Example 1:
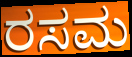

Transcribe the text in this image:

ರಸಮ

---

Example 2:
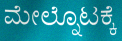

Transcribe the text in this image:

ಮೇಲ್ನೊಟಕ್ಕೆ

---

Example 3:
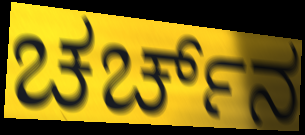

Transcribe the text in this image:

ಚರ್ಚ್‌ನ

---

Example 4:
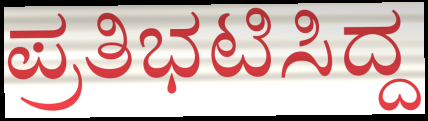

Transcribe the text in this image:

ಪ್ರತಿಭಟಿಸಿದ್ದ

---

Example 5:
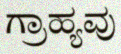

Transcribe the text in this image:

ಗ್ರಾಹ್ಯವು